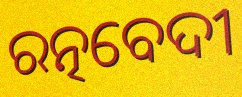
ରତ୍ନବେଦୀ